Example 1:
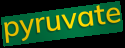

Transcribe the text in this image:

pyruvate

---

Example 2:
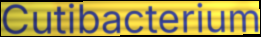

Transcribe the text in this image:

Cutibacterium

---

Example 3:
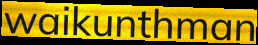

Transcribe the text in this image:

waikunthman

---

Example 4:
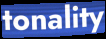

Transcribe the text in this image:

tonality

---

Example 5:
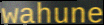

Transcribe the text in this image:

wahune